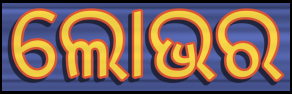
ଲୋଭର